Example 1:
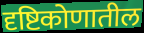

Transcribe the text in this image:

दृष्टिकोणातील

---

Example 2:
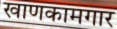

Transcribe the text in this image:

खाणकामगार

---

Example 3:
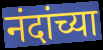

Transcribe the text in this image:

नंदांच्या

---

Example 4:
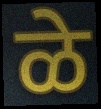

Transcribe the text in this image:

ळे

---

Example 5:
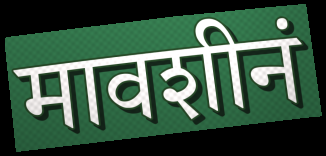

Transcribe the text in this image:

मावशीनं